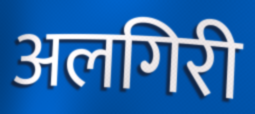
अलगिरी